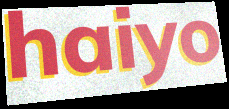
haiyo